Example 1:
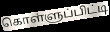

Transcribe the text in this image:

கொள்ளுப்பிட்டி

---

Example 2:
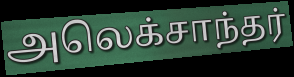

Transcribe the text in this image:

அலெக்சாந்தர்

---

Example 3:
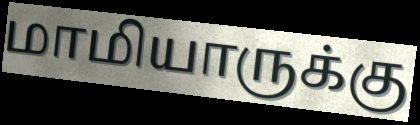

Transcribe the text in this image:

மாமியாருக்கு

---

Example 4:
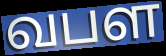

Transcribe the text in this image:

வபள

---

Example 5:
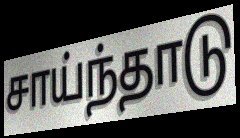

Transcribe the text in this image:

சாய்ந்தாடு